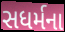
સધર્મના